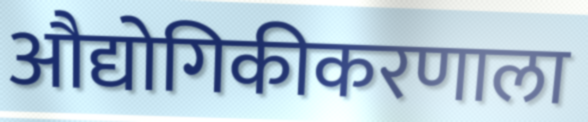
औद्योगिकीकरणाला